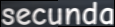
secunda